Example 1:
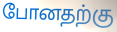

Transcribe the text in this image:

போனதற்கு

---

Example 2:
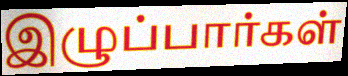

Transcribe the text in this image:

இழுப்பார்கள்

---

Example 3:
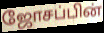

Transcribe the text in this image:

ஜோசப்பின்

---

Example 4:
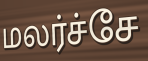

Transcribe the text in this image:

மலர்ச்சே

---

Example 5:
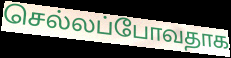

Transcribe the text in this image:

செல்லப்போவதாக